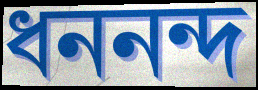
ধননন্দ